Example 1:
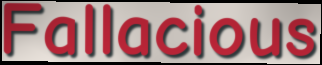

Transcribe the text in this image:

Fallacious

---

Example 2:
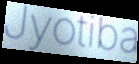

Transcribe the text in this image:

Jyotiba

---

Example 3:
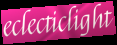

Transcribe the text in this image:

eclecticlight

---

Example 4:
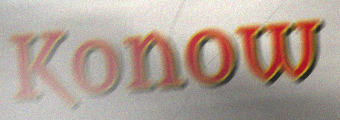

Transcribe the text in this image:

Konow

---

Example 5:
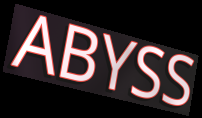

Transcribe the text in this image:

ABYSS